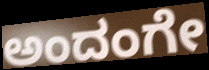
ಅಂದಂಗೇ